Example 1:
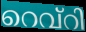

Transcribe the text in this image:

റെവ്റി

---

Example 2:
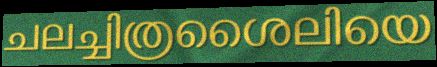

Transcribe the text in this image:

ചലച്ചിത്രശൈലിയെ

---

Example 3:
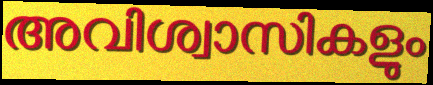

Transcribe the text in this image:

അവിശ്വാസികളും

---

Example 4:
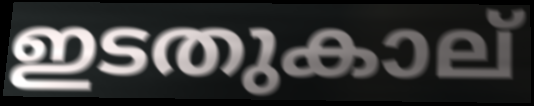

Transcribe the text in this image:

ഇടതുകാല്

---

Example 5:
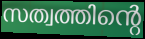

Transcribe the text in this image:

സത്വത്തിന്റെ